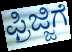
ಫ್ರಿಜ್ಜಿಗೆ